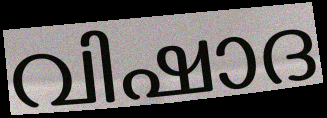
വിഷാദ